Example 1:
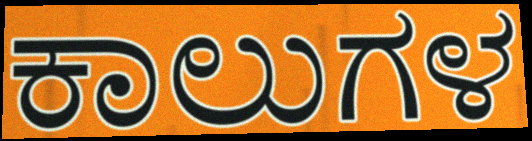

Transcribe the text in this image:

ಕಾಲುಗಳ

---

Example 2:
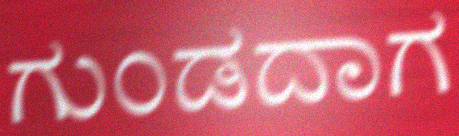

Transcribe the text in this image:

ಗುಂಡದಾಗ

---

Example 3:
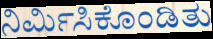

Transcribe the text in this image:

ನಿರ್ಮಿಸಿಕೊಂಡಿತು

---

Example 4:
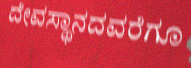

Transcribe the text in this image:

ದೇವಸ್ಥಾನದವರೆಗೂ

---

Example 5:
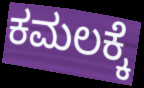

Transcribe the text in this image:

ಕಮಲಕ್ಕೆ